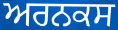
ਅਰਨਕਸ